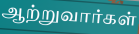
ஆற்றுவார்கள்